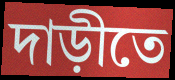
দাড়ীতে